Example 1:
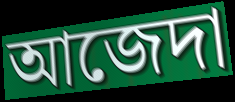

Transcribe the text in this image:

আজেদা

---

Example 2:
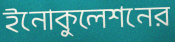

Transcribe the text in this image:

ইনোকুলেশনের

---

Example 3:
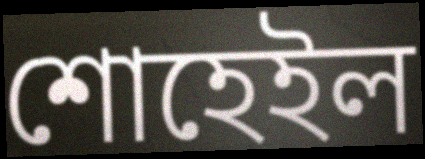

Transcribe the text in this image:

শোহেইল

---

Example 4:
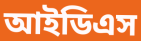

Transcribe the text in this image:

আইডিএস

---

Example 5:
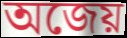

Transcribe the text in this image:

অজেয়